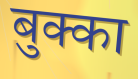
बुक्का